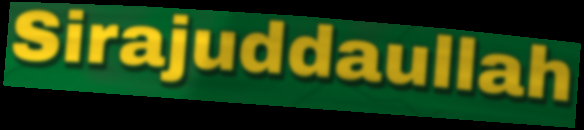
Sirajuddaullah